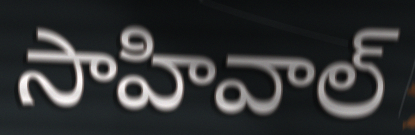
సాహివాల్